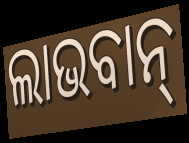
ଲାଭବାନ୍